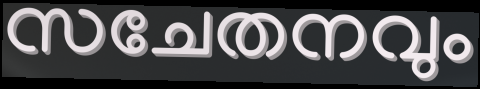
സചേതനവും